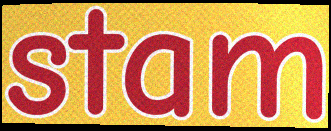
stam